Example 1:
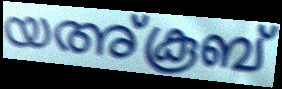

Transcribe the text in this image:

യഅ്കൂബ്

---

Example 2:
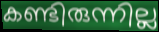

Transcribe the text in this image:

കണ്ടിരുന്നില്ല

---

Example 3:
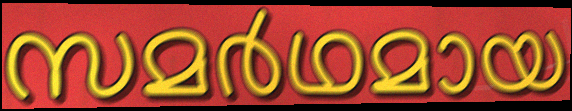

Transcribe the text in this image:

സമർഥമായ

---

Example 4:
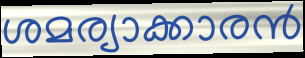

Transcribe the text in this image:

ശമര്യാക്കാരൻ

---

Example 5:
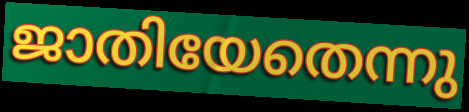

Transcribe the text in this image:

ജാതിയേതെന്നു